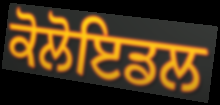
ਕੋਲੋਇਡਲ